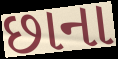
છાના